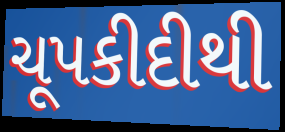
ચૂપકીદીથી